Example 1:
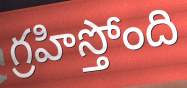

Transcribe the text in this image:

గ్రహిస్తోంది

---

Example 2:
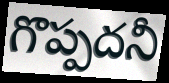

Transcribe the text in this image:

గొప్పదనీ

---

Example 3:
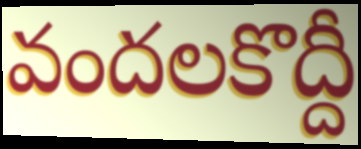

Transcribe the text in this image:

వందలకొద్దీ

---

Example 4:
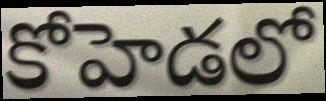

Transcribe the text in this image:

కోహెడలో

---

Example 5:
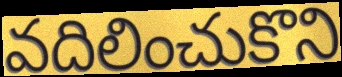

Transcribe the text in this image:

వదిలించుకొని